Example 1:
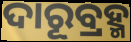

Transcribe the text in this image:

ଦାରୂବ୍ରହ୍ମ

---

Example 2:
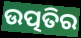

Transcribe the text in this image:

ଉତ୍ପତିର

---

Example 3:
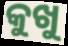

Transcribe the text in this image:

କୁଖୁ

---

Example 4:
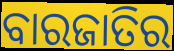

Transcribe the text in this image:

ବାରଜାତିର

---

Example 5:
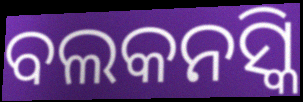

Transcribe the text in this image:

ବଲକନସ୍କି